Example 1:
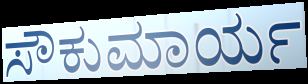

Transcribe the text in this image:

ಸೌಕುಮಾರ್ಯ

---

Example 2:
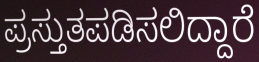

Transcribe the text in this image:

ಪ್ರಸ್ತುತಪಡಿಸಲಿದ್ದಾರೆ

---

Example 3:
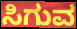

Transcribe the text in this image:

ಸಿಗುವ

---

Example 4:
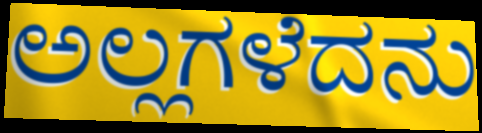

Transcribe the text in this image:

ಅಲ್ಲಗಳೆದನು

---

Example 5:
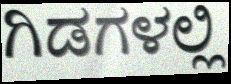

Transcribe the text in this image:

ಗಿಡಗಳಲ್ಲಿ